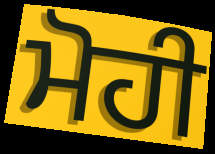
ਮੋਹੀ